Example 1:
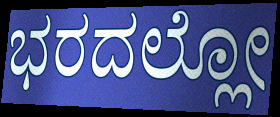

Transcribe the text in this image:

ಭರದಲ್ಲೋ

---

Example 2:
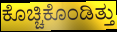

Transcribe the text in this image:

ಕೊಚ್ಚಿಕೊಂಡಿತ್ತು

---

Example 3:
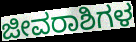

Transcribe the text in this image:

ಜೀವರಾಶಿಗಳ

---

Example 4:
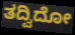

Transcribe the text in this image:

ತದ್ವಿದೋ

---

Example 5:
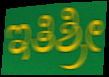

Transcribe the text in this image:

ಇತಿಶ್ರೀ